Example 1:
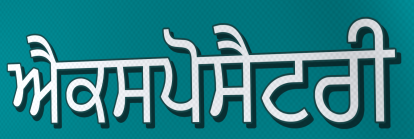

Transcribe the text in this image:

ਐਕਸਪੋਸੈਟਰੀ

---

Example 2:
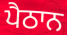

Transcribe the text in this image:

ਪੈਠਾਨ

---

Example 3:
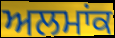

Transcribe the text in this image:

ਅਲਮਾਂਕ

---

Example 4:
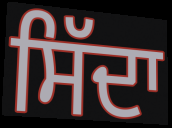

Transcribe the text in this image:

ਸਿੱਦਾ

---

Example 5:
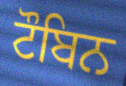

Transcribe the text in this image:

ਟੌਬਿਨ